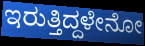
ಇರುತ್ತಿದ್ದಳೇನೋ